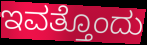
ಇವತ್ತೊಂದು